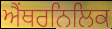
ਐਂਥਰਨਿਲਿਕ